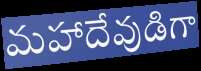
మహాదేవుడిగా